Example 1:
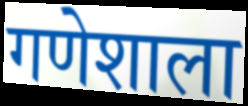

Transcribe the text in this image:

गणेशाला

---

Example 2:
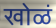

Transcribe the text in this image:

खोळं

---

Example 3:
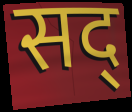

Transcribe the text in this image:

सद्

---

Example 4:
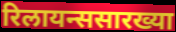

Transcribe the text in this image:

रिलायन्ससारख्या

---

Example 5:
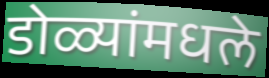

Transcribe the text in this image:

डोळ्यांमधले